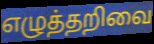
எழுத்தறிவை